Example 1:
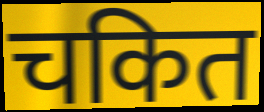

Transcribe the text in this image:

चकित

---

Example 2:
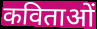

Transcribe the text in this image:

कविताओं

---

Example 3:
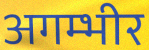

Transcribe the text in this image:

अगम्भीर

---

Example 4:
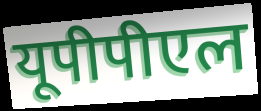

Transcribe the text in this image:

यूपीपीएल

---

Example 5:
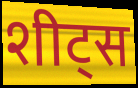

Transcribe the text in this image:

शीट्स